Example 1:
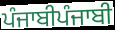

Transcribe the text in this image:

ਪੰਜਾਬੀਪੰਜਾਬੀ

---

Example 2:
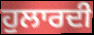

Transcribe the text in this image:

ਹੁਲਾਰਦੀ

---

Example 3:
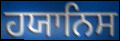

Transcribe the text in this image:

ਹਯਾਨਿਸ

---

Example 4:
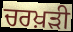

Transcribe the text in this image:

ਚਰਖ਼ੜੀ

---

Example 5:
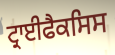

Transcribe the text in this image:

ਟ੍ਰਾਈਫੈਕਸਿਸ